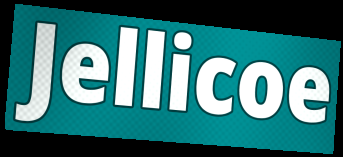
Jellicoe